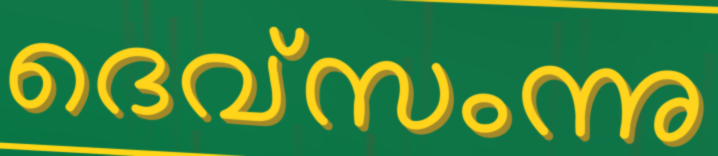
ദെവ്സംന്നു